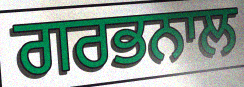
ਗਰਭਨਾਲ